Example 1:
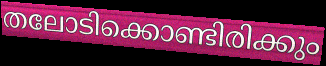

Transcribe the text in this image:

തലോടിക്കൊണ്ടിരിക്കും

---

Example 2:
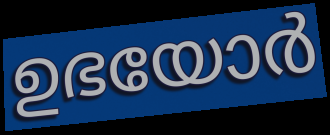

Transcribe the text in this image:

ഉഭയോർ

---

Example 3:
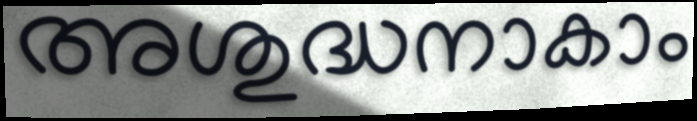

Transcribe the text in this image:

അശുദ്ധനാകാം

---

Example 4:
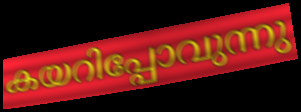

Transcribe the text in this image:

കയറിപ്പോവുന്നു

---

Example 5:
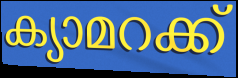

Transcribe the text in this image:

ക്യാമറക്ക്